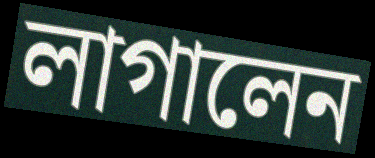
লাগালেন